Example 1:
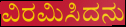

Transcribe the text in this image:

ವಿರಮಿಸಿದನು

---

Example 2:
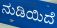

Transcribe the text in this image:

ನುಡಿಯಿದೆ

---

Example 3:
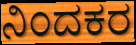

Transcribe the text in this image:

ನಿಂದಕರ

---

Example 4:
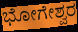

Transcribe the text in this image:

ಭೋಗೇಶ್ವರ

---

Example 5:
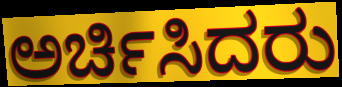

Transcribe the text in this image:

ಅರ್ಚಿಸಿದರು